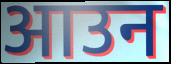
आउन